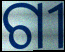
ଗୀ